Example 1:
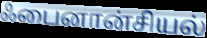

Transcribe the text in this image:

ஃபைனான்சியல்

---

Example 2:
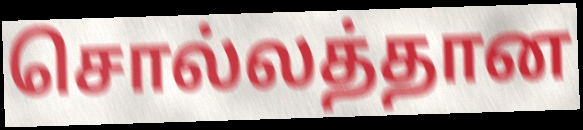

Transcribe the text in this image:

சொல்லத்தான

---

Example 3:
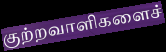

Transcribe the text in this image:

குற்றவாளிகளைச்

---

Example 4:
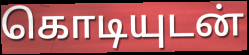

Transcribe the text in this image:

கொடியுடன்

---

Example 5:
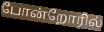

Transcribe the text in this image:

போன்றோரில்